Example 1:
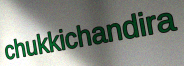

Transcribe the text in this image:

chukkichandira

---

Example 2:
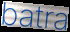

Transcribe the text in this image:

batra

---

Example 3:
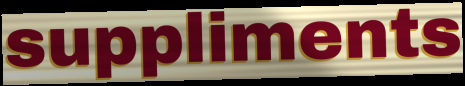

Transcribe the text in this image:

suppliments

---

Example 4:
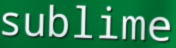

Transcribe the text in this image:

sublime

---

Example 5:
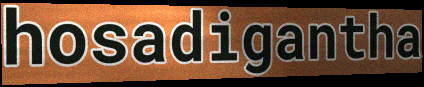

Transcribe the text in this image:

hosadigantha